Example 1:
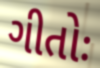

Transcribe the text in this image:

ગીતોઃ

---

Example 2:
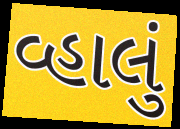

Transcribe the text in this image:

વ્હાલું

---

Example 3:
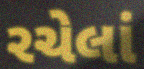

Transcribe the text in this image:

રચેલાં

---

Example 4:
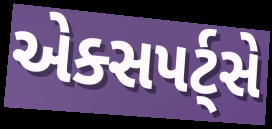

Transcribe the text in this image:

એક્સપર્ટ્સે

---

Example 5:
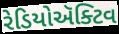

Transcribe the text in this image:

રેડિયોઍક્ટિવ